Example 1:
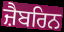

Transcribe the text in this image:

ਜ਼ੈਬਰਿਨ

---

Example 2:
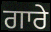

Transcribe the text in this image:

ਗਾਰੇ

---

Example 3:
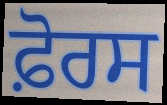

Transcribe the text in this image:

ਫ਼ੋਰਸ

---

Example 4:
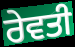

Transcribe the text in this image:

ਰੇਵਤੀ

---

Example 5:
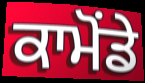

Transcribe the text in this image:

ਕਾਮੋਂਡੇ